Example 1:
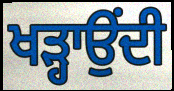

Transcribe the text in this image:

ਖੜ੍ਹਾਉਂਦੀ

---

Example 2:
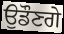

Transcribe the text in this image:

ਉਡੌਣਗੇ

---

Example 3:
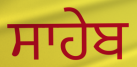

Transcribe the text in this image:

ਸਾਹੇਬ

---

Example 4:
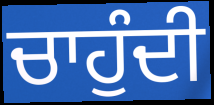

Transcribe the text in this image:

ਚਾਹੁੰਦੀ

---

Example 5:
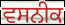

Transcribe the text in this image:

ਵਸਨੀਕ